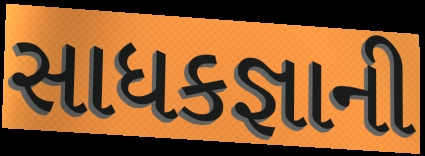
સાધકજ્ઞાની